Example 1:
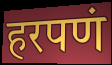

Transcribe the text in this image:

हरपणं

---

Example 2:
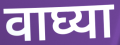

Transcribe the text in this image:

वाघ्या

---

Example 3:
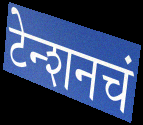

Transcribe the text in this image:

टेन्शनचं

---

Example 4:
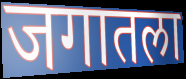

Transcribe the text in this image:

जगातला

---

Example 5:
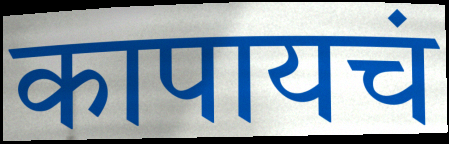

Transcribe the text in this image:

कापायचं